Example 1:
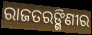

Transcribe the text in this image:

ରାଜତରଙ୍ଗିଣୀର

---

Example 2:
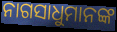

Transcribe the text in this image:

ନାଗସାଧୁମାନଙ୍କ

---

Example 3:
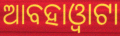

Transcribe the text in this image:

ଆବହାଓ୍ୱାଟା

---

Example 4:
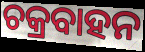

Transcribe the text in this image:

ଚକ୍ରବାହନ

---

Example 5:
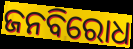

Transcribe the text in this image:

ଜନବିରୋଧ